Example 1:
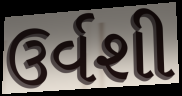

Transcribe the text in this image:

ઉર્વશી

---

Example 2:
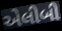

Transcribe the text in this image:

એલીબી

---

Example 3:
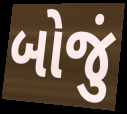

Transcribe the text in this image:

બોજું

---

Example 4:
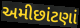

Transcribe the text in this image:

અમીછાંટણાં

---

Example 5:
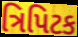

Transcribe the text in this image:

ત્રિપિટક